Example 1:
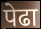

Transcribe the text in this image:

पेढा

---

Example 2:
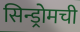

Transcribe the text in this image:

सिन्ड्रोमची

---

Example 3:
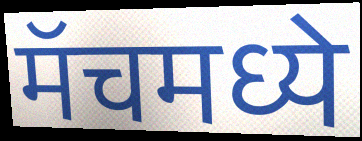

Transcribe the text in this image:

मॅचमध्ये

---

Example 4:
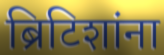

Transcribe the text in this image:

ब्रिटिशांना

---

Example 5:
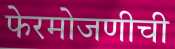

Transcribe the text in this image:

फेरमोजणीची